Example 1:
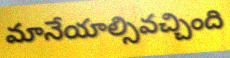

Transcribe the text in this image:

మానేయాల్సివచ్చింది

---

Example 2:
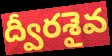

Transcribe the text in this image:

ద్వీరశైవ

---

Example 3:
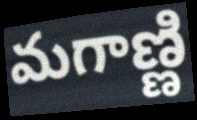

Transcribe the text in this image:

మగాణ్ణి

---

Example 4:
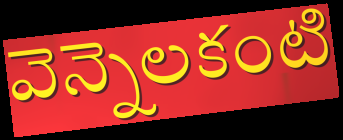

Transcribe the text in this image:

వెన్నెలకంటి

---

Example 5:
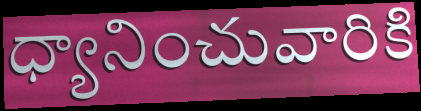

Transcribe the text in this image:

ధ్యానించువారికి